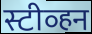
स्टीव्हन